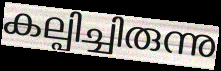
കല്പിച്ചിരുന്നു